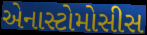
એનાસ્ટોમોસીસ